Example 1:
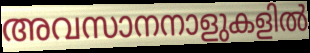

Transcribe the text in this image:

അവസാനനാളുകളിൽ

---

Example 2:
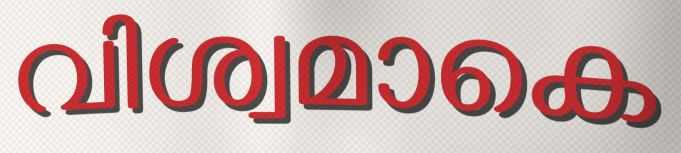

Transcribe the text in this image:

വിശ്വമാകെ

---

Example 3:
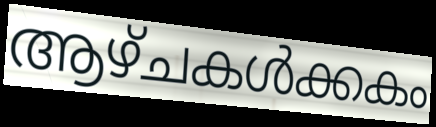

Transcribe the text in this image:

ആഴ്ചകൾക്കകം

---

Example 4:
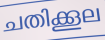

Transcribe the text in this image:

ചതിക്കൂല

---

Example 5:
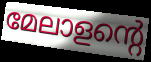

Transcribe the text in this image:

മേലാളന്റെ